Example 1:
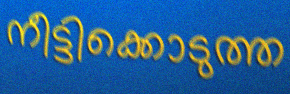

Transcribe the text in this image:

നീട്ടിക്കൊടുത്ത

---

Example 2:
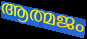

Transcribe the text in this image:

ആത്മജം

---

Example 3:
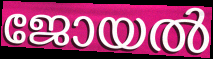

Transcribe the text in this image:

ജോയൽ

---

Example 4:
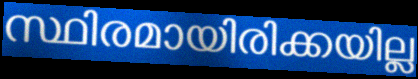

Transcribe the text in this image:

സ്ഥിരമായിരിക്കയില്ല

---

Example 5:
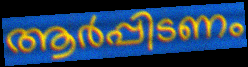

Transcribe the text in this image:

ആർപ്പിടണം